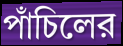
পাঁচিলের